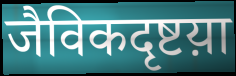
जैविकदृष्टय़ा